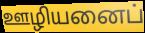
ஊழியனைப்